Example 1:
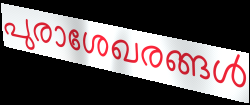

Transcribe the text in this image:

പുരാശേഖരങ്ങൾ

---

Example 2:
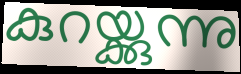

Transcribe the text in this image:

കുറയ്ക്കുന്നു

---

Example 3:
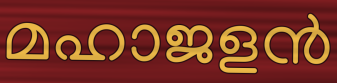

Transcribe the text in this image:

മഹാജളൻ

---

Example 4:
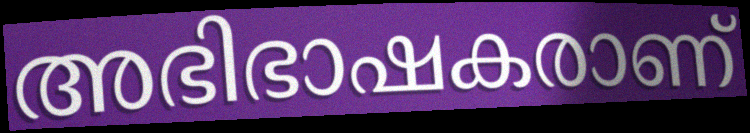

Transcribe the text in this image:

അഭിഭാഷകരാണ്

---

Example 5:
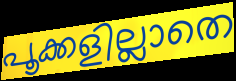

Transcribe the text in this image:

പൂക്കളില്ലാതെ